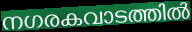
നഗരകവാടത്തിൽ